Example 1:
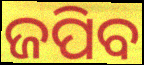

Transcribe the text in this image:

ଜପିବ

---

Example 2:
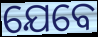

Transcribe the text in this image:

ଯେବେ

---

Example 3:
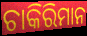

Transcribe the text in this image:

ଚାକିରିମାନ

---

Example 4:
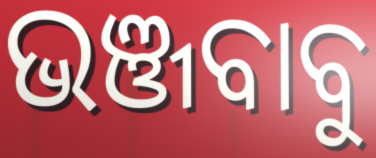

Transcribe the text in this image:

ଭଞ୍ଜବାବୁ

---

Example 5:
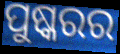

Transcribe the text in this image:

ପୁଷ୍କରର